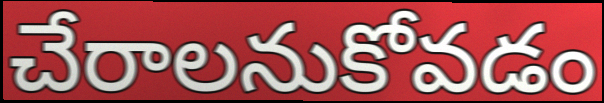
చేరాలనుకోవడం